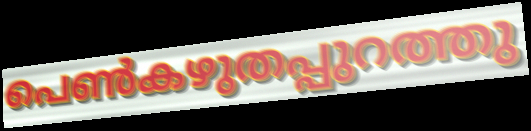
പെൺകഴുതപ്പുറത്തു